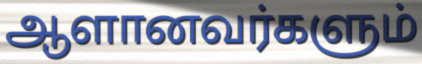
ஆளானவர்களும்